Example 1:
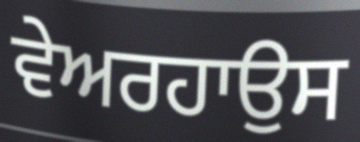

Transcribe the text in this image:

ਵੇਅਰਹਾਉਸ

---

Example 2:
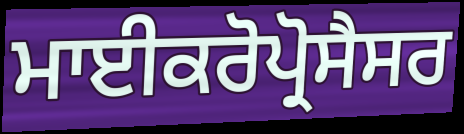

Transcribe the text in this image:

ਮਾਈਕਰੋਪ੍ਰੋਸੈਸਰ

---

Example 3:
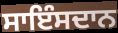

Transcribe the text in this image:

ਸਾਇੰਸਦਾਨ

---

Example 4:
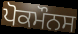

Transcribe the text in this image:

ਪੋਕਮੌਨਸ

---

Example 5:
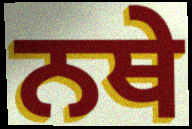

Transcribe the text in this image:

ਨਥੇ